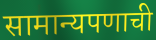
सामान्यपणाची